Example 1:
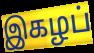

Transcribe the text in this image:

இகழப்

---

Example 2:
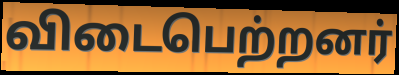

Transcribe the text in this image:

விடைபெற்றனர்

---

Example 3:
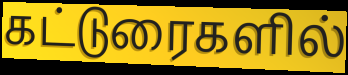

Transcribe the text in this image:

கட்டுரைகளில்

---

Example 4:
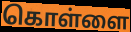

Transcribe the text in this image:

கொள்ளை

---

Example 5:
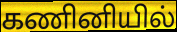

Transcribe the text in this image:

கணினியில்